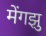
मेंगझु